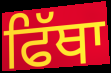
ਫਿੱਥਾ